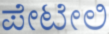
ಪೇಟೇಲಿ